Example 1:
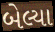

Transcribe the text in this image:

બેલ્યા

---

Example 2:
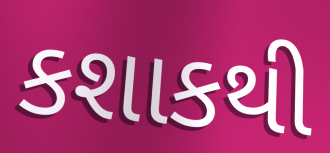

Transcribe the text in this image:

કશાકથી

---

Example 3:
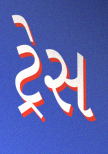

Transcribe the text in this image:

ટ્રેસ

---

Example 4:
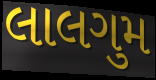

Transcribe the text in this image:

લાલગુમ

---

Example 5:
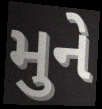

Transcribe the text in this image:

મુને